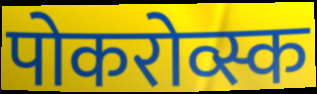
पोकरोव्स्क